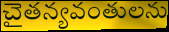
చైతన్యవంతులను